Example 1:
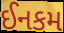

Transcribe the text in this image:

ઈનકમ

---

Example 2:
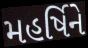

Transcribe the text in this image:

મહર્ષિને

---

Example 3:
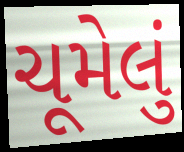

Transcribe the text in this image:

ચૂમેલું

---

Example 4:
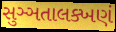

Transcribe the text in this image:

સુઞ્ઞતાલક્ખણં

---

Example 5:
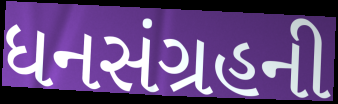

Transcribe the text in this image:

ધનસંગ્રહની